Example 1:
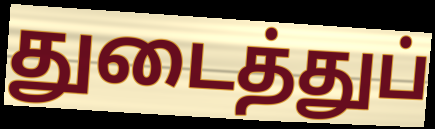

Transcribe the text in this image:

துடைத்துப்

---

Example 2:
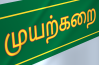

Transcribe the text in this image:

முயற்கறை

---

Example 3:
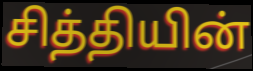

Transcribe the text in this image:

சித்தியின்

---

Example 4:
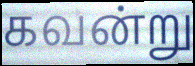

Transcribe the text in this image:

கவன்று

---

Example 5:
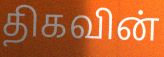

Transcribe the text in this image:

திகவின்